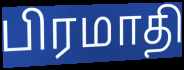
பிரமாதி